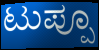
ಟುಪ್ಪೂ